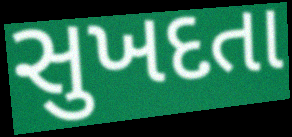
સુખદતા